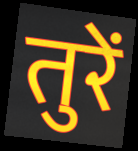
तुरें